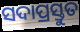
ସଦାପ୍ରସ୍ତୁତ